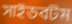
সাইডবটম